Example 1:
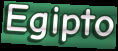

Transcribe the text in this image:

Egipto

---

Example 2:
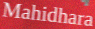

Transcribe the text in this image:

Mahidhara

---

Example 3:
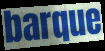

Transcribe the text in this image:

barque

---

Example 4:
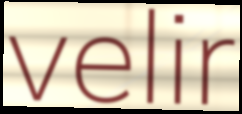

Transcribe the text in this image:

velir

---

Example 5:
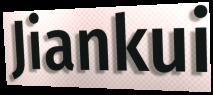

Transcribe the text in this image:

Jiankui